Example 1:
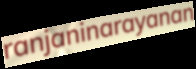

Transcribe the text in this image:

ranjaninarayanan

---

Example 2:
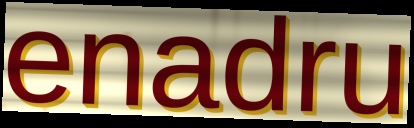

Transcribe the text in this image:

enadru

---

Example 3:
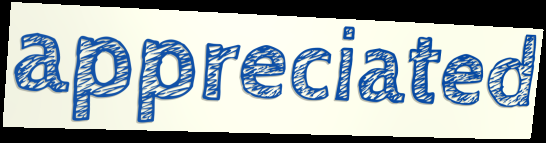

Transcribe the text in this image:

appreciated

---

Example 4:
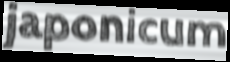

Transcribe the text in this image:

japonicum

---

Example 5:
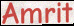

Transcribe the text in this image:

Amrit